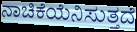
ನಾಚಿಕೆಯೆನಿಸುತ್ತದೆ